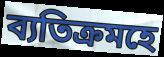
ব্যতিক্ৰমহে